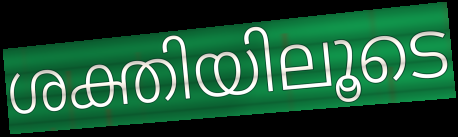
ശക്തിയിലൂടെ